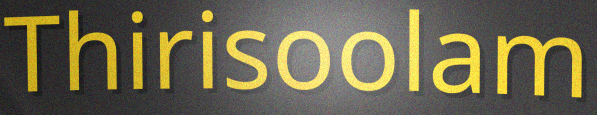
Thirisoolam